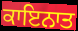
ਕਾਇਨਾਤ